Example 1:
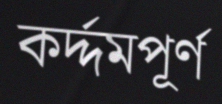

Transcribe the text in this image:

কর্দ্দমপূর্ণ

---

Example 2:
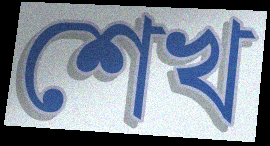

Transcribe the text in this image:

শেখ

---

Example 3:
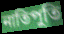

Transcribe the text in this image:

নাতিপুতি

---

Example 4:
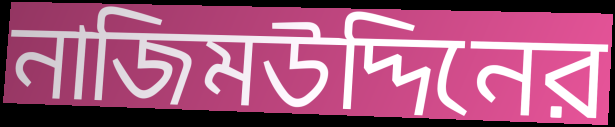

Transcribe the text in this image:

নাজিমউদ্দিনের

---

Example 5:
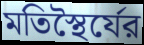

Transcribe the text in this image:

মতিস্থৈর্যের